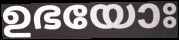
ഉഭയോഃ